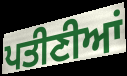
ਪਤੀਣੀਆਂ